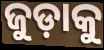
ଜୁଡ଼ାକୁ